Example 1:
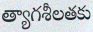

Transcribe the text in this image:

త్యాగశీలతకు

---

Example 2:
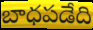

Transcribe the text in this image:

బాధపడేది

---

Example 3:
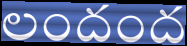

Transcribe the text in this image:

లందంద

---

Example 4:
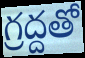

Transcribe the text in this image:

గ్రద్దతో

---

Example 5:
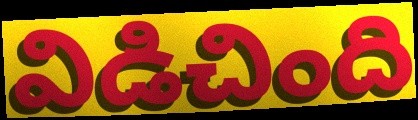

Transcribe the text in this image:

విడిచింది